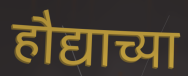
हौद्याच्या